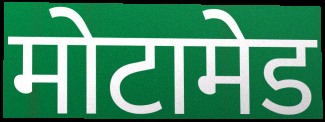
मोटामेड